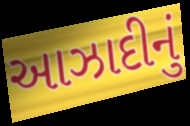
આઝાદીનું